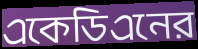
একেডিএনের